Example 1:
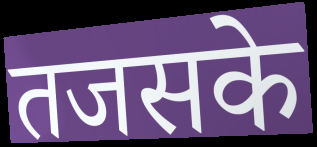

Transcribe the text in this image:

तजसके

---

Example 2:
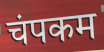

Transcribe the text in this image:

चंपकम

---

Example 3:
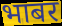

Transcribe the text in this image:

भाबर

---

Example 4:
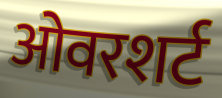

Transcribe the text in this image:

ओवरशर्ट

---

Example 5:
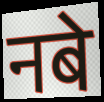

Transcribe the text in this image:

नबे